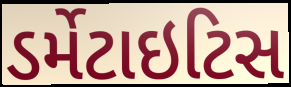
ડર્મેટાઇટિસ